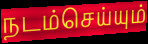
நடம்செய்யும்